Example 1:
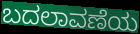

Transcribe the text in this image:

ಬದಲಾವಣೆಯ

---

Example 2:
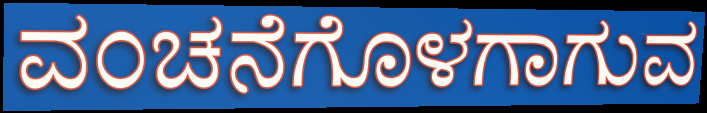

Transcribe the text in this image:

ವಂಚನೆಗೊಳಗಾಗುವ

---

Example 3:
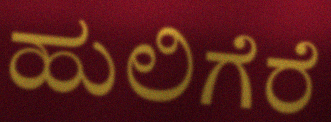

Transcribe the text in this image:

ಹುಲಿಗೆರೆ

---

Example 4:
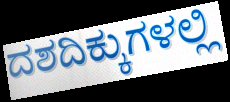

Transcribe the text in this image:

ದಶದಿಕ್ಕುಗಳಲ್ಲಿ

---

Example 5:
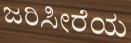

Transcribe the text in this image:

ಜರಿಸೀರೆಯ